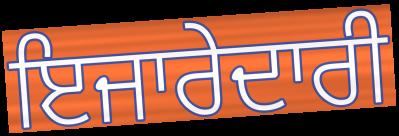
ਇਜਾਰੇਦਾਰੀ